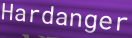
Hardanger